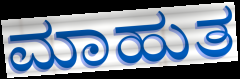
ಮಾಹುತ